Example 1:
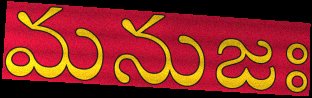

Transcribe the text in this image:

మనుజః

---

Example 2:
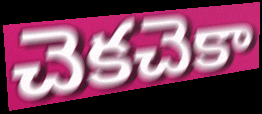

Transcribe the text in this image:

చెకచెకా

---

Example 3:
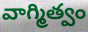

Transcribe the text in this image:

వాగ్మిత్వం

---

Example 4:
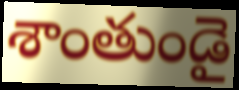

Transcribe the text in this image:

శాంతుండై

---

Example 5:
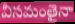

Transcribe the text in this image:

వీసమంతైనా